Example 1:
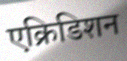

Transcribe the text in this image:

एक्रिडिशन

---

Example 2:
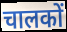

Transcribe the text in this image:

चालकों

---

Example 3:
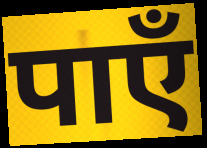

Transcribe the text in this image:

पाएँ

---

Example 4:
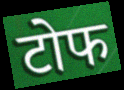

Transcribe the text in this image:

टोफ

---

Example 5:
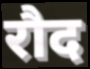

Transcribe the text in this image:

रौद